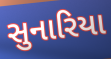
સુનારિયા